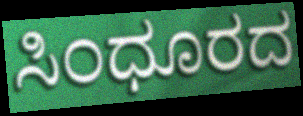
ಸಿಂಧೂರದ